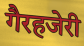
गैरहजेरी